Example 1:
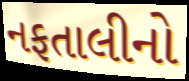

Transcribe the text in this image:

નફતાલીનો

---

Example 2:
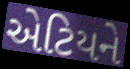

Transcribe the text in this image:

એટિયને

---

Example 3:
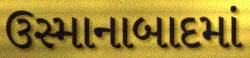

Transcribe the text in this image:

ઉસ્માનાબાદમાં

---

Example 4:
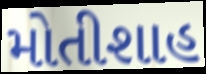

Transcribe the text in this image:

મોતીશાહ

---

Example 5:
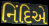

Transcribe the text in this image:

નિંદિએ